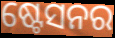
ଷ୍ଟେସନର